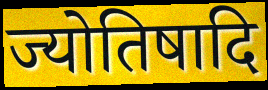
ज्योतिषादि